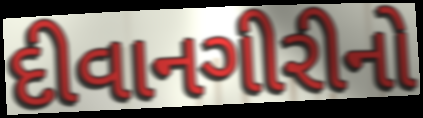
દીવાનગીરીનો